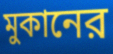
মুকানের